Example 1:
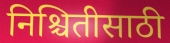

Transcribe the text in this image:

निश्चितीसाठी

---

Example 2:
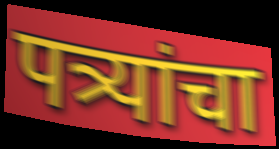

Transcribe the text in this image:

पत्र्यांचा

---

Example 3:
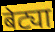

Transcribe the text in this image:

बेट्या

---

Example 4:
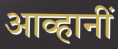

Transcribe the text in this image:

आव्हानीं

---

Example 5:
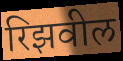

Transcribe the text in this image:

रिझवील